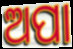
ଅପା